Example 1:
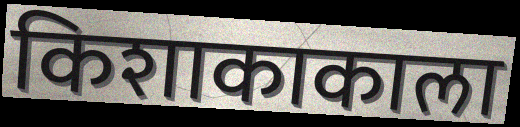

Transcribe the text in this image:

किशाकाकाला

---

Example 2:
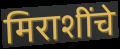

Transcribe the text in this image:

मिराशींचे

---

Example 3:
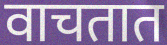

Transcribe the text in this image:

वाचतात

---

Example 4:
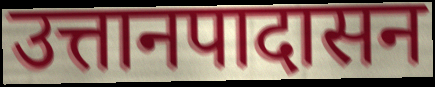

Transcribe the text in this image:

उत्तानपादासन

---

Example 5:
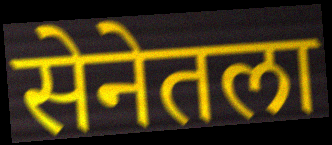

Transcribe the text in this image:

सेनेतला